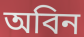
অবিন